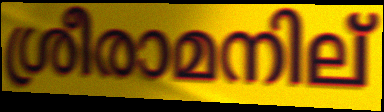
ശ്രീരാമനില്